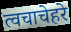
त्वचाचेहरे